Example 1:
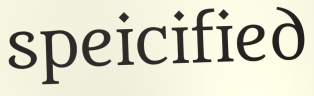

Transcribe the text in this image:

speicified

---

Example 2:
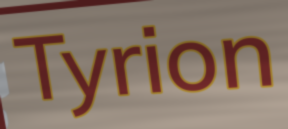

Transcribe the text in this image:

Tyrion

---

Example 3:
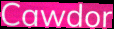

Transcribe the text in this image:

Cawdor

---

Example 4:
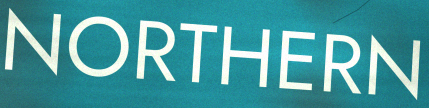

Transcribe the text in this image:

NORTHERN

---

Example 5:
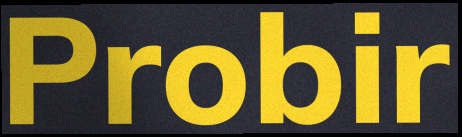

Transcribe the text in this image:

Probir